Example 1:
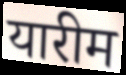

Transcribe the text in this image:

यारीम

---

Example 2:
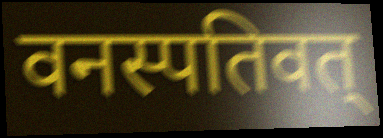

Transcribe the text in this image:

वनस्पतिवत्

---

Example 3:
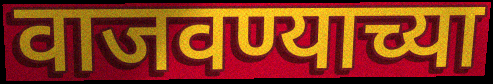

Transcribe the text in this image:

वाजवण्याच्या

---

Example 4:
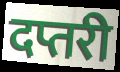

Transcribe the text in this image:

दप्तरी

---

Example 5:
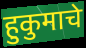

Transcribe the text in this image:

हुकुमाचे